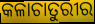
କଳାଚାତୁରୀର